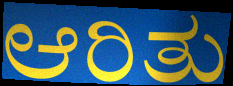
ಆರಿತು